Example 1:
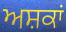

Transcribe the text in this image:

ਅਸ਼ਕਾਂ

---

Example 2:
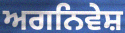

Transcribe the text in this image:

ਅਗਨਿਵੇਸ਼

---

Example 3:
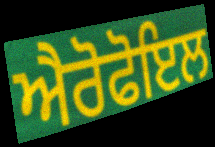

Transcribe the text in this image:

ਐਰੋਫੋਇਲ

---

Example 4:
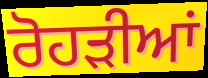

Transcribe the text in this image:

ਰੋਹੜੀਆਂ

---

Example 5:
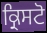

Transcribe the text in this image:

ਕ੍ਰਿਸਟੋ